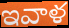
ఇవాళ